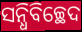
ସନ୍ଧିବିଚ୍ଛେଦ